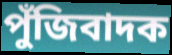
পুঁজিবাদক